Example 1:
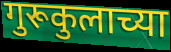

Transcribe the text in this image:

गुरूकुलाच्या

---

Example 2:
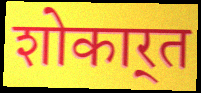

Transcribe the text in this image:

शोकार्त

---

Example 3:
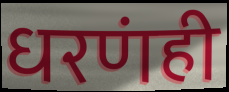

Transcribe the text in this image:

धरणंही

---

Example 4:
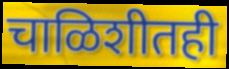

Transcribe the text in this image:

चाळिशीतही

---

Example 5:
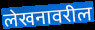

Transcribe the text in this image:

लेखनावरील